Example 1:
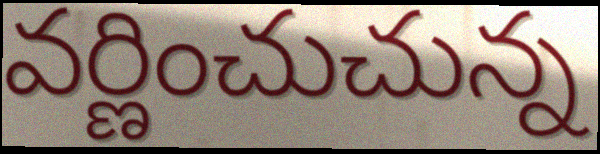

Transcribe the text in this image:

వర్ణించుచున్న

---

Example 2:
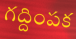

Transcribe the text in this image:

గద్దింపక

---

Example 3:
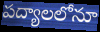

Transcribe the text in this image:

పద్యాలలోనూ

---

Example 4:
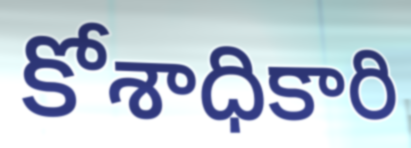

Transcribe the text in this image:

కోశాధికారి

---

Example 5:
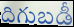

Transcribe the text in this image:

దిగుబడీ